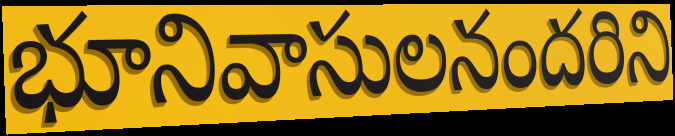
భూనివాసులనందరిని